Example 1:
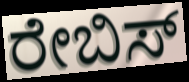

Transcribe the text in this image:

ರೇಬಿಸ್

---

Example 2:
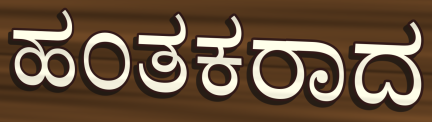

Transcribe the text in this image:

ಹಂತಕರಾದ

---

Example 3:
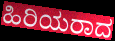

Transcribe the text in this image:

ಹಿರಿಯರಾದ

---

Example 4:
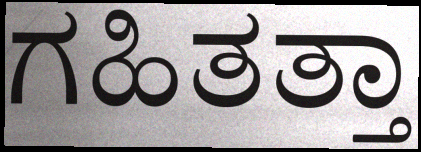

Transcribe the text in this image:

ಗಹಿತತ್ತಾ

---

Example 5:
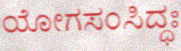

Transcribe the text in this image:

ಯೋಗಸಂಸಿದ್ಧಃ